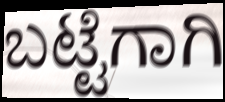
ಬಟ್ಟೆಗಾಗಿ